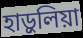
হাড়ুলিয়া